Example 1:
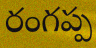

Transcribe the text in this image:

రంగప్ప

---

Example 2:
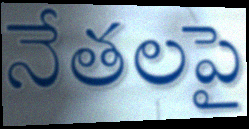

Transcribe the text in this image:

నేతలపై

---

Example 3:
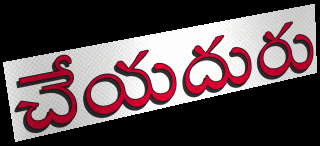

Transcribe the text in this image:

చేయదురు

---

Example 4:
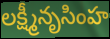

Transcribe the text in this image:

లక్ష్మీనృసింహ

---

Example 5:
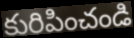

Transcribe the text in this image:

కురిపించండి